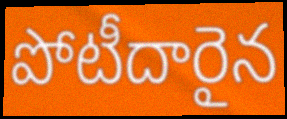
పోటీదారైన